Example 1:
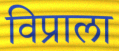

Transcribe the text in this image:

विप्राला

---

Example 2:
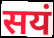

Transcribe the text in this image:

सयं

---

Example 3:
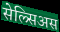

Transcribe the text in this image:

सेल्सिअस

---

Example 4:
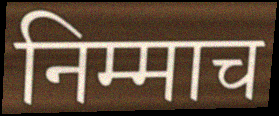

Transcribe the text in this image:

निम्माच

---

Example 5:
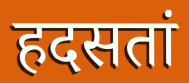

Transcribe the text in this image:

हदसतां